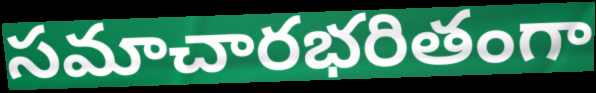
సమాచారభరితంగా